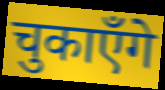
चुकाएँगे